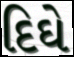
દિઘે